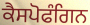
ਕੈਸਪੋਫੰਗਿਨ